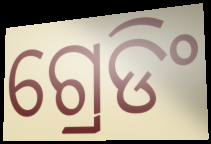
ଗ୍ରେଡିଂ